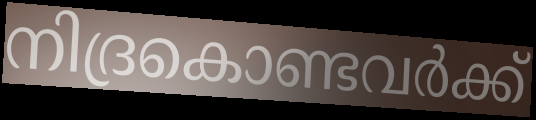
നിദ്രകൊണ്ടവർക്ക്